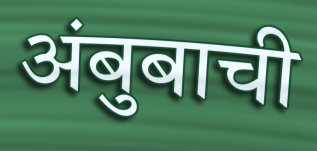
अंबुबाची